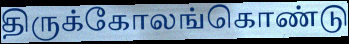
திருக்கோலங்கொண்டு